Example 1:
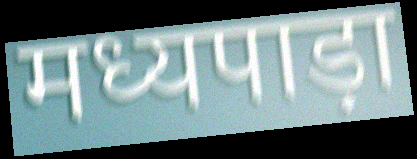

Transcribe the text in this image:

मध्यपाड़ा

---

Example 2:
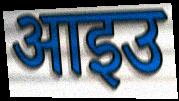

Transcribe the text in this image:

आइउ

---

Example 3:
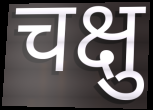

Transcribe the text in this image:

चक्षु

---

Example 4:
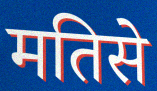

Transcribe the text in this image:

मतिसे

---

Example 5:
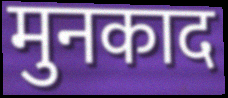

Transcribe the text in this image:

मुनकाद